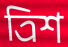
ত্রিশ